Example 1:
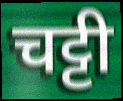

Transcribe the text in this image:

चट्टी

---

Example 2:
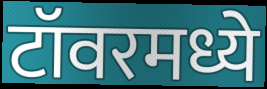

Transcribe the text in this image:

टॉवरमध्ये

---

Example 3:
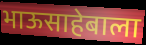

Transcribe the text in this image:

भाऊसाहेबाला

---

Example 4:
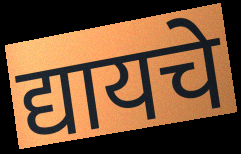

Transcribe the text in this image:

द्यायचे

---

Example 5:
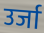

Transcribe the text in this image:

उर्जा